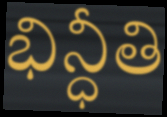
భిన్ధీతి